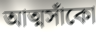
আত্মসাঁকো